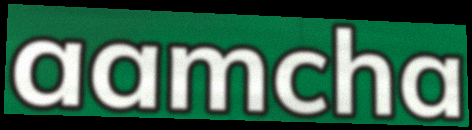
aamcha